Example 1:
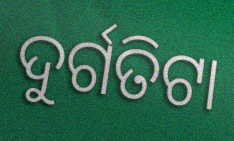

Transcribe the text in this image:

ଦୁର୍ଗତିଟା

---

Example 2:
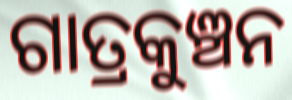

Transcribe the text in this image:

ଗାତ୍ରକୁଞ୍ଚନ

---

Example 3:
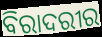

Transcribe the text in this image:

ବିରାଦରୀର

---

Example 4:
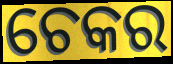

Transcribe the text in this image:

ଚେକର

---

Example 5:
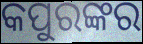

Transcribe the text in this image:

କପୁରଙ୍କର